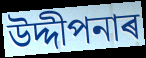
উদ্দীপনাৰ